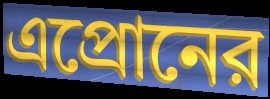
এপ্রোনের